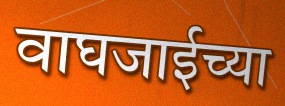
वाघजाईच्या